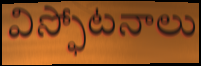
విస్ఫోటనాలు